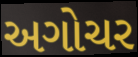
અગોચર